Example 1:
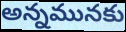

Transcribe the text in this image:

అన్నమునకు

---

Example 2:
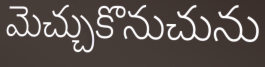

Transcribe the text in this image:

మెచ్చుకొనుచును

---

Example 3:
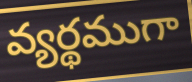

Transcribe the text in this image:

వ్యర్థముగా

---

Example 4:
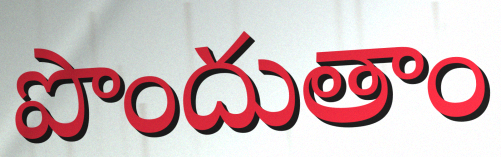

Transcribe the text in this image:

పొందుతాం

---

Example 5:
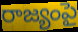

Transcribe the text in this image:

రాజ్యంపై